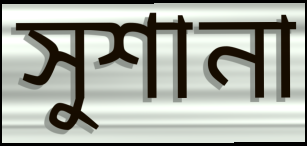
সুশানা